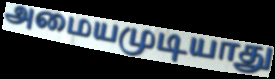
அமையமுடியாது